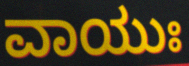
ವಾಯುಃ